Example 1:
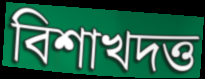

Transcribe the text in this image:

বিশাখদত্ত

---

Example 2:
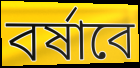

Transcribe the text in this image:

বর্ষাবে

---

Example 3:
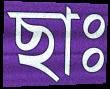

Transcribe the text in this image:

ছাঃ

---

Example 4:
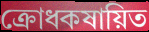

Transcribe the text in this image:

ক্রোধকষায়িত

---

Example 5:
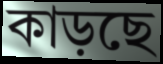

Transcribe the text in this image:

কাড়ছে